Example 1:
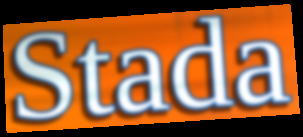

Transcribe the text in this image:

Stada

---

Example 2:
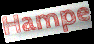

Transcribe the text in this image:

Hampe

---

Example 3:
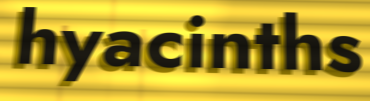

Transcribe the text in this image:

hyacinths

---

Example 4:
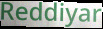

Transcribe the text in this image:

Reddiyar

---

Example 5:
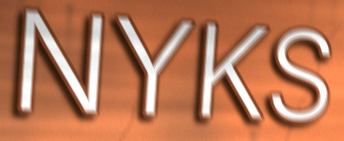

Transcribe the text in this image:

NYKS